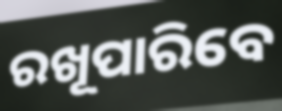
ରଖୂପାରିବେ